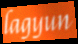
lagyun